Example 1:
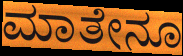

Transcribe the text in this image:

ಮಾತೇನೂ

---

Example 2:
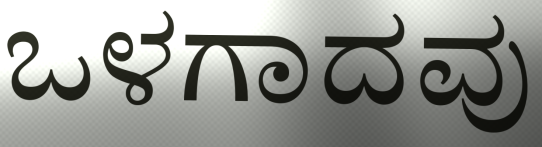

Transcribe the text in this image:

ಒಳಗಾದವು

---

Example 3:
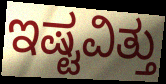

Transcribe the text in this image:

ಇಷ್ಟವಿತ್ತು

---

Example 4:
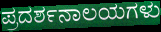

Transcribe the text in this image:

ಪ್ರದರ್ಶನಾಲಯಗಳು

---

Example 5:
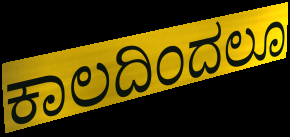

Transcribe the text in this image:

ಕಾಲದಿಂದಲೂ